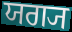
ਯਗ੍ਯ